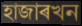
হাজাৰখন